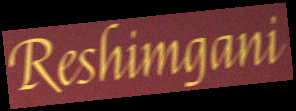
Reshimgani